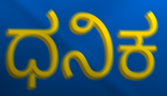
ಧನಿಕ